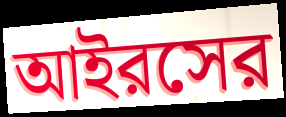
আইরসের